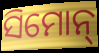
ସିମୋନ୍